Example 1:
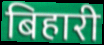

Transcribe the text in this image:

बिहारी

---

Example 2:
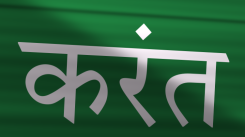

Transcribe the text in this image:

करंत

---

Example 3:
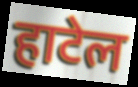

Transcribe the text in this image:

हाटेल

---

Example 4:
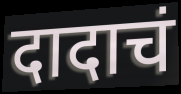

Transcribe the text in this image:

दादाचं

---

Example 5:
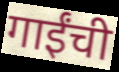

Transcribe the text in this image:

गाईंची